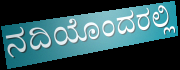
ನದಿಯೊಂದರಲ್ಲಿ